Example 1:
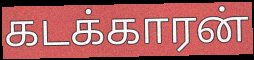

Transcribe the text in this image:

கடக்காரன்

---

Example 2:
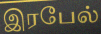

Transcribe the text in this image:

இரபேல்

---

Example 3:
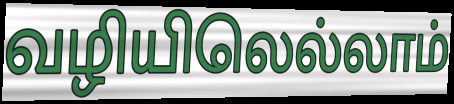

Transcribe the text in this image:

வழியிலெல்லாம்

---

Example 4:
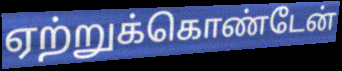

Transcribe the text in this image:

ஏற்றுக்கொண்டேன்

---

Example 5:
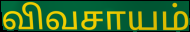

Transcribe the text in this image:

விவசாயம்